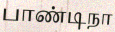
பாண்டிநா